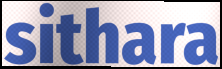
sithara